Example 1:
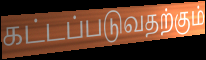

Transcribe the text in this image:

கட்டப்படுவதற்கும்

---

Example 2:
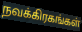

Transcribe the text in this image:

நவக்கிரகங்கள்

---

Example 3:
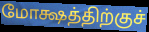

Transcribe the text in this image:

மோக்ஷத்திற்குச்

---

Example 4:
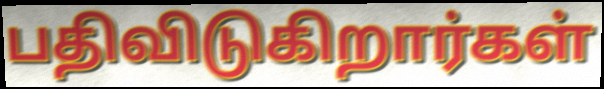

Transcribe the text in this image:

பதிவிடுகிறார்கள்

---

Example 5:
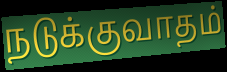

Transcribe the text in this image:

நடுக்குவாதம்